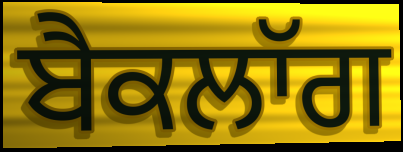
ਬੈਕਲਾੱਗ